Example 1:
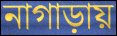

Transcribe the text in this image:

নাগাড়ায়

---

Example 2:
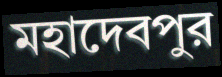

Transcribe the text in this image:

মহাদেবপুর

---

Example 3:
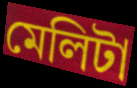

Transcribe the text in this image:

মেলিটা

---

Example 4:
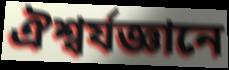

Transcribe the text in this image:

ঐশ্বর্যজ্ঞানে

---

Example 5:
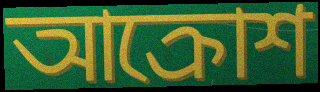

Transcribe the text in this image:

আক্রোশ